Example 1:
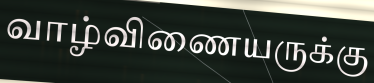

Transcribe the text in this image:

வாழ்விணையருக்கு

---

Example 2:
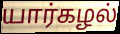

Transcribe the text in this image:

யார்கழல்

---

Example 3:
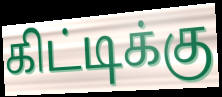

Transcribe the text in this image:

கிட்டிக்கு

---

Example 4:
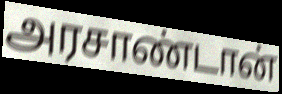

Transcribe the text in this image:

அரசாண்டான்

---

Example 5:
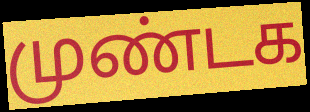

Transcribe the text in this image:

முண்டக